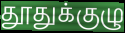
தூதுக்குழு